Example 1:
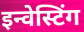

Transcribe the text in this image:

इन्वेस्टिंग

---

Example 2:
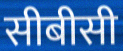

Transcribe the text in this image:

सीबीसी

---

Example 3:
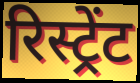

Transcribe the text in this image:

रिस्ट्रेंट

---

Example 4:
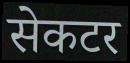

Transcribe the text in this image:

सेकटर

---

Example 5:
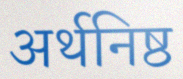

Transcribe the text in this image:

अर्थनिष्ठ